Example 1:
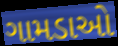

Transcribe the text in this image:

ગામડાઓ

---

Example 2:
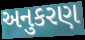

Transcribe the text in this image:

અનુકરણ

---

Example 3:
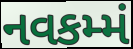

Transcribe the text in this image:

નવકમ્મં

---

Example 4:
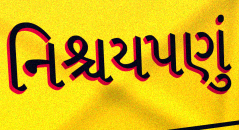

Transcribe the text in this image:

નિશ્ચયપણું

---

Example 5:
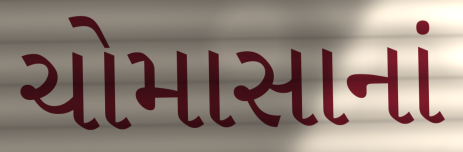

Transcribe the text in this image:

ચોમાસાનાં